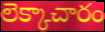
లెక్కాచారం